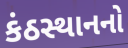
કંઠસ્થાનનો